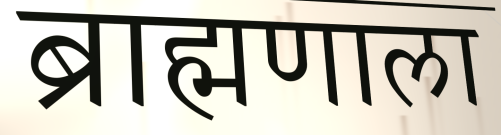
ब्राह्मणाला